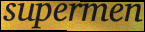
supermen